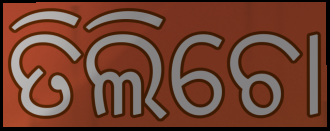
ତିଲିଚୋ